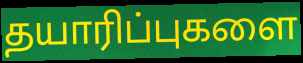
தயாரிப்புகளை